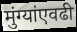
मुंग्यांएवढी